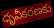
ధృవీకరణకు